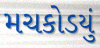
મચકોડયું